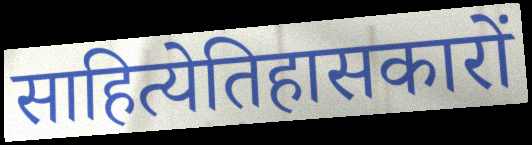
साहित्येतिहासकारों